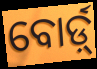
ବୋର୍ଡ଼୍